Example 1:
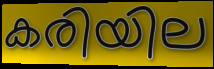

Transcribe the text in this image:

കരിയില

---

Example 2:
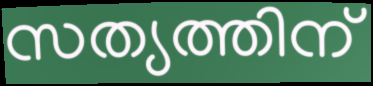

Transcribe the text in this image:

സത്യത്തിന്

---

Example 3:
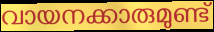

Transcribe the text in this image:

വായനക്കാരുമുണ്ട്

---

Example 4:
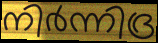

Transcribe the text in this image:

നിർന്നിദ്ര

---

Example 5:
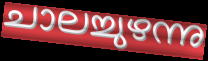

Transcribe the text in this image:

ചാലച്ചുഴന്നു